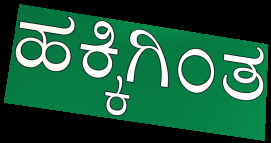
ಹಕ್ಕಿಗಿಂತ